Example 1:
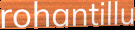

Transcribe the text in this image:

rohantillu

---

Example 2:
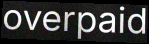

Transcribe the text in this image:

overpaid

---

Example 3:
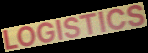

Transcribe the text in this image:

LOGISTICS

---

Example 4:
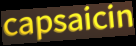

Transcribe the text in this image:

capsaicin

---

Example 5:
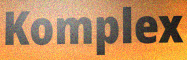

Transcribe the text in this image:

Komplex